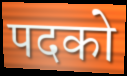
पदको